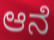
ಆನೆ